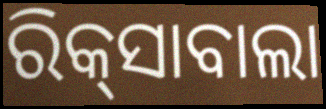
ରିକ୍‍ସାବାଲା